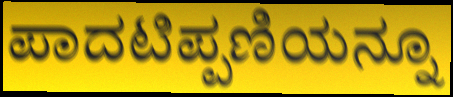
ಪಾದಟಿಪ್ಪಣಿಯನ್ನೂ